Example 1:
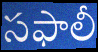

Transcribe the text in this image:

సఫాలీ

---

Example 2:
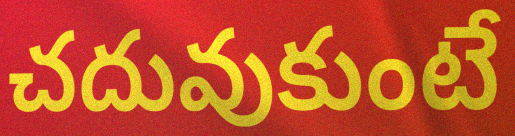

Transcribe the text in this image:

చదువుకుంటే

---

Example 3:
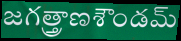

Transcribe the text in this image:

జగత్త్రాణశౌండమ్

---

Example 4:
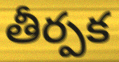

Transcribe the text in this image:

తీర్పక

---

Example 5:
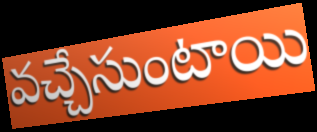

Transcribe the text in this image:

వచ్చేసుంటాయి